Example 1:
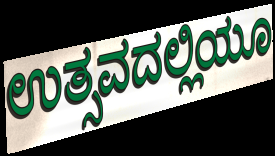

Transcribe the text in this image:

ಉತ್ಸವದಲ್ಲಿಯೂ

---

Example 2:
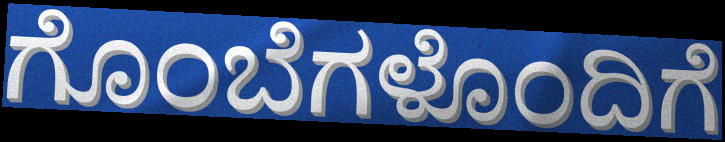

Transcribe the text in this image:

ಗೊಂಬೆಗಳೊಂದಿಗೆ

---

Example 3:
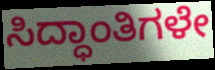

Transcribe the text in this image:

ಸಿದ್ಧಾಂತಿಗಳೇ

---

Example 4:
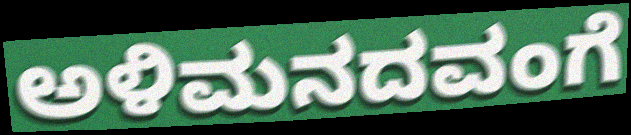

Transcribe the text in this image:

ಅಳಿಮನದವಂಗೆ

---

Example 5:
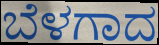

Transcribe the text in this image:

ಬೆಳಗಾದ